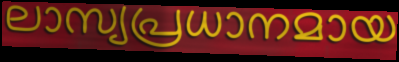
ലാസ്യപ്രധാനമായ